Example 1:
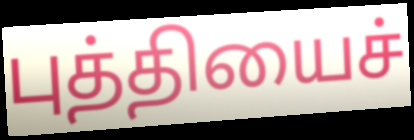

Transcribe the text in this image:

புத்தியைச்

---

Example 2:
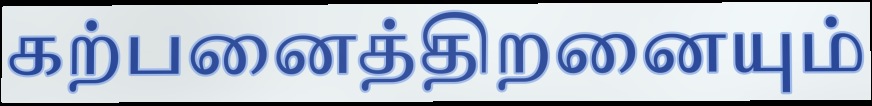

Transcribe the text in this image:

கற்பனைத்திறனையும்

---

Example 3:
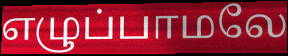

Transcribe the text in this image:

எழுப்பாமலே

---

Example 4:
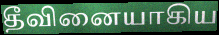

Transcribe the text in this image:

தீவினையாகிய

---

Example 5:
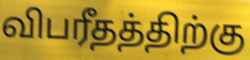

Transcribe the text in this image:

விபரீதத்திற்கு